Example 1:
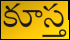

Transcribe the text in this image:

కూస్త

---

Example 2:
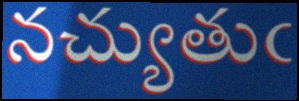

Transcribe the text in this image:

నచ్యుతుఁ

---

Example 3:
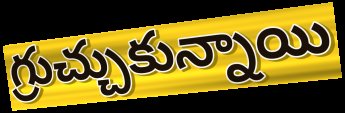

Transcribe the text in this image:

గ్రుచ్చుకున్నాయి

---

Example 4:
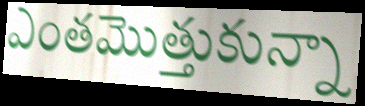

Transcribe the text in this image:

ఎంతమొత్తుకున్నా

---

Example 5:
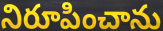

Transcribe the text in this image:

నిరూపించాను